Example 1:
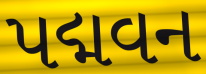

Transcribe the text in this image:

પદ્મવન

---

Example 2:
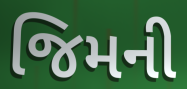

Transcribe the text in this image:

જિમની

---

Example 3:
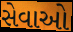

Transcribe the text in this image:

સેવાઓ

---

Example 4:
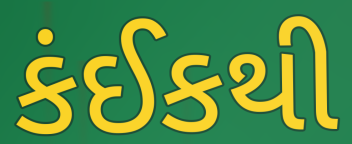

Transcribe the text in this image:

કંઈકથી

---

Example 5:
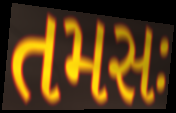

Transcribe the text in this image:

તમસઃ